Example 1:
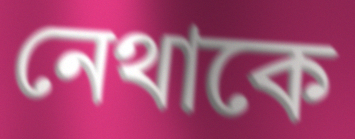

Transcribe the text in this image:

নেথাকে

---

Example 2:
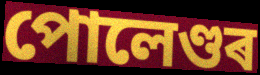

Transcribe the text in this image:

পোলেণ্ডৰ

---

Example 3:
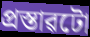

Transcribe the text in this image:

প্ৰস্তাৱটো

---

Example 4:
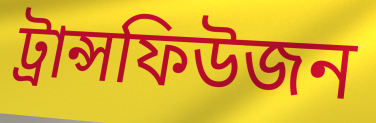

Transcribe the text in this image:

ট্ৰান্সফিউজন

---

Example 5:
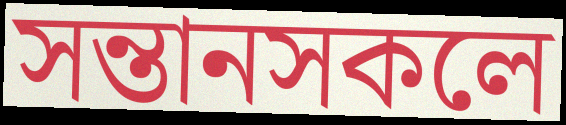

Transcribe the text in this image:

সন্তানসকলে